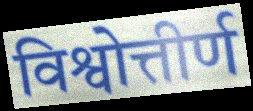
विश्वोत्तीर्ण